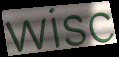
wisc